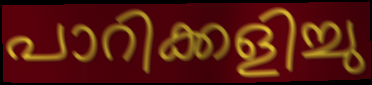
പാറിക്കളിച്ചു